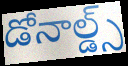
డోనాల్డ్స్